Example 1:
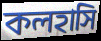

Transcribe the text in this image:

কলহাসি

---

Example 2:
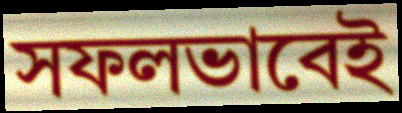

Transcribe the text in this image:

সফলভাবেই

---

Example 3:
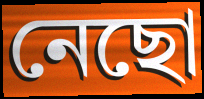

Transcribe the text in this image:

নেছো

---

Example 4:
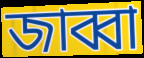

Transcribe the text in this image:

জাব্বা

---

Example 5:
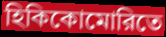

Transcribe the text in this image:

হিকিকোমোরিতে